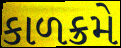
કાળક્રમે